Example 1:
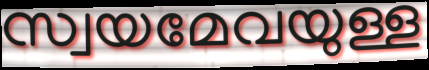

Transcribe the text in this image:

സ്വയമേവയുള്ള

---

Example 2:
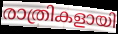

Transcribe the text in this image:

രാത്രികളായി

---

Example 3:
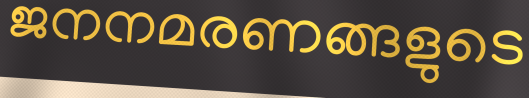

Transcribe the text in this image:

ജനനമരണങ്ങളുടെ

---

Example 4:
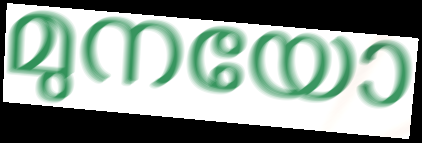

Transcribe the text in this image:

മുനയോ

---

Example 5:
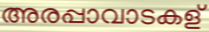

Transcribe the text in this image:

അരപ്പാവാടകള്